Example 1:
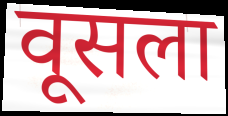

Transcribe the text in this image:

वूसला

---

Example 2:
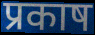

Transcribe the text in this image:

प्रकाष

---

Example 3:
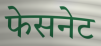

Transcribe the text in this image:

फेसनेट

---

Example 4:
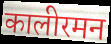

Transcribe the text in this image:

कालीरमन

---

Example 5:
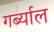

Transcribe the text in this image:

गर्ब्याल